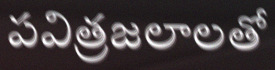
పవిత్రజలాలతో